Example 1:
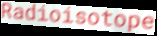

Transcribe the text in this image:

Radioisotope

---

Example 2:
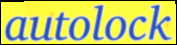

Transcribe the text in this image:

autolock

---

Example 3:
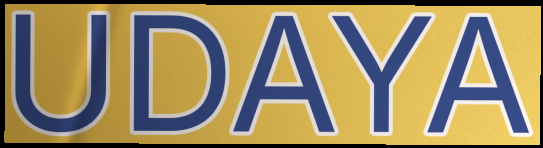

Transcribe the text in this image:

UDAYA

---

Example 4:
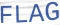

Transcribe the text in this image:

FLAG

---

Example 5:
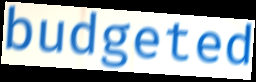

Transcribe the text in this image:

budgeted